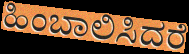
ಹಿಂಬಾಲಿಸಿದರೆ